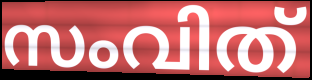
സംവിത്